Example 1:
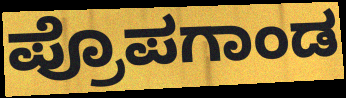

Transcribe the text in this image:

ಪ್ರೊಪಗಾಂಡ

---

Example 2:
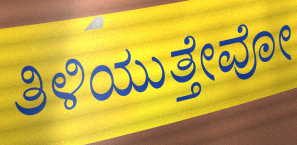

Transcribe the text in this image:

ತಿಳಿಯುತ್ತೇವೋ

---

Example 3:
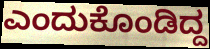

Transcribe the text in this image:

ಎಂದುಕೊಂಡಿದ್ದ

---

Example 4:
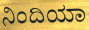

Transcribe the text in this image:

ನಿಂದಿಯಾ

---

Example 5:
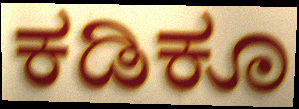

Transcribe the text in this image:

ಕಡಿಕೂ